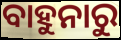
ବାହୁନାରୁ